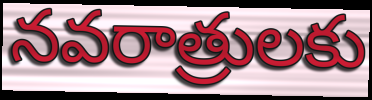
నవరాత్రులకు